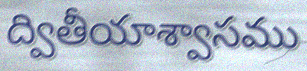
ద్వితీయాశ్వాసము